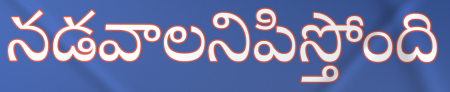
నడవాలనిపిస్తోంది